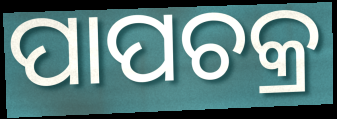
ପାପଚକ୍ର